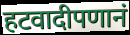
हटवादीपणानं